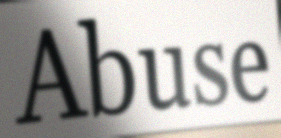
Abuse